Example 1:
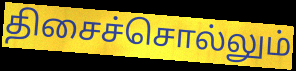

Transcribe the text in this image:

திசைச்சொல்லும்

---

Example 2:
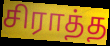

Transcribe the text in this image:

சிராத்த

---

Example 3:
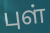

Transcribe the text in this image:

புள்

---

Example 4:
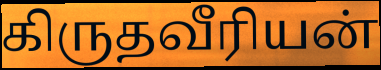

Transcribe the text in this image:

கிருதவீரியன்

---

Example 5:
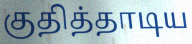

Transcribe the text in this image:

குதித்தாடிய